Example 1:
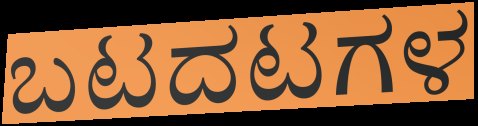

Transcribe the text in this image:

ಬಟದಟಗಳ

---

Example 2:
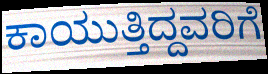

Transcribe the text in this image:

ಕಾಯುತ್ತಿದ್ದವರಿಗೆ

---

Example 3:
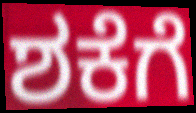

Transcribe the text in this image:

ಶಕೆಗೆ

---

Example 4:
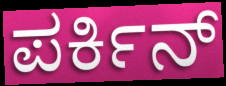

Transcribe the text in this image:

ಪರ್ಕಿನ್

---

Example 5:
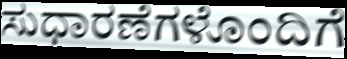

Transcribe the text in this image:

ಸುಧಾರಣೆಗಳೊಂದಿಗೆ